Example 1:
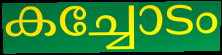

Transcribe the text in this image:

കച്ചോടം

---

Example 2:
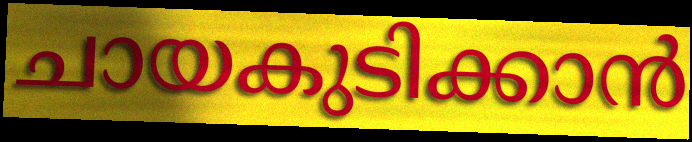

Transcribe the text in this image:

ചായകുടിക്കാൻ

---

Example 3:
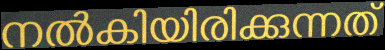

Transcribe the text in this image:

നൽകിയിരിക്കുന്നത്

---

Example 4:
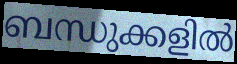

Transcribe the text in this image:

ബന്ധുക്കളിൽ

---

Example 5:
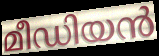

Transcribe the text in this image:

മീഡിയൻ